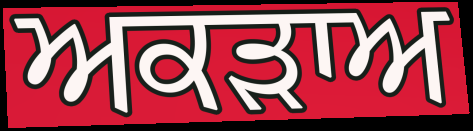
ਅਕੜਾਅ